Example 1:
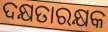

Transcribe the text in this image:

ଦକ୍ଷତାରକ୍ଷକ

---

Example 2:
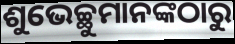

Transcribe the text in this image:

ଶୁଭେଚ୍ଛୁମାନଙ୍କଠାରୁ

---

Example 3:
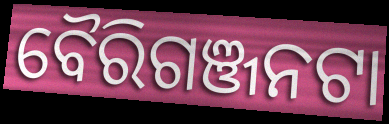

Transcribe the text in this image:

ବୈରିଗଞ୍ଜନଟା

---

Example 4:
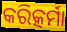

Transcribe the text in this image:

କରିତ୍କର୍ମା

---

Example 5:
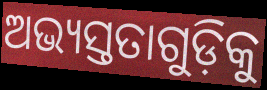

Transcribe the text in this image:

ଅଭ୍ୟସ୍ତତାଗୁଡ଼ିକୁ